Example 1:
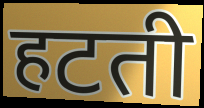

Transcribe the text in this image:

हटती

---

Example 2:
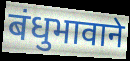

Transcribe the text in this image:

बंधुभावाने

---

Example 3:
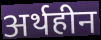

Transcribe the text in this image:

अर्थहीन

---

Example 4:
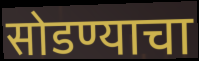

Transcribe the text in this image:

सोडण्याचा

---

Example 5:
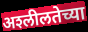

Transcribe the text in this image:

अश्‍लीलतेच्या